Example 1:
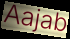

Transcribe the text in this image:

Aajab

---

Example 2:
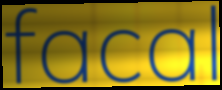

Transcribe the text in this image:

facal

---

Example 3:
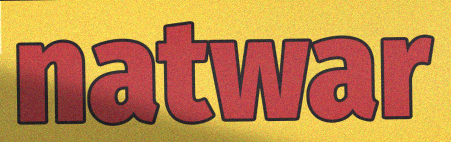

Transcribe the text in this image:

natwar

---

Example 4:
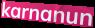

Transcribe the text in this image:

karnanun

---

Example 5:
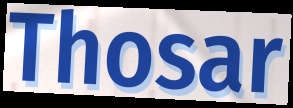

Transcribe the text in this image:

Thosar